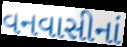
વનવાસીનાં